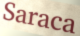
Saraca